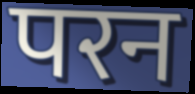
परन